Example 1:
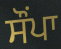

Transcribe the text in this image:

ਸੌਂਪਾ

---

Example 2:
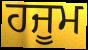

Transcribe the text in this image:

ਹਜੂਮ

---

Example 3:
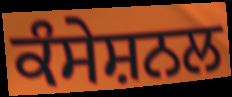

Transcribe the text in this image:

ਕੰਸੇਸ਼ਨਲ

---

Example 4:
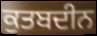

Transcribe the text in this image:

ਕੁਤਬਦੀਨ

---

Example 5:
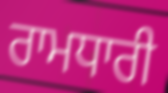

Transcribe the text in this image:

ਰਾਮਧਾਰੀ